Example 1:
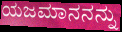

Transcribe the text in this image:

ಯಜಮಾನನನ್ನು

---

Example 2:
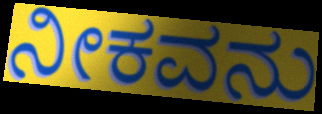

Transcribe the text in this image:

ನೀಕವನು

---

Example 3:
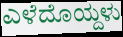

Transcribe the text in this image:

ಎಳೆದೊಯ್ದಳು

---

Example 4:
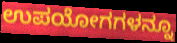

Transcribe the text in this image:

ಉಪಯೋಗಗಳನ್ನೂ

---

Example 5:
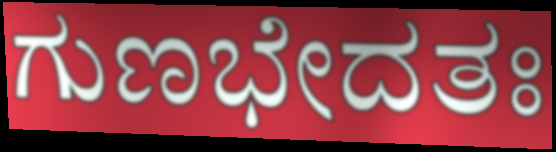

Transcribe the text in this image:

ಗುಣಭೇದತಃ